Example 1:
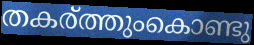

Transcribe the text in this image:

തകര്ത്തുംകൊണ്ടു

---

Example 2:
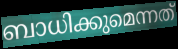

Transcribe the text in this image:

ബാധിക്കുമെന്നത്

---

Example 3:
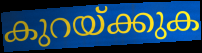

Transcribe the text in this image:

കുറയ്ക്കുക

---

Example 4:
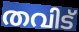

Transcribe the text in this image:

തവിട്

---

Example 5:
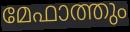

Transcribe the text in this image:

മേഫാത്തും